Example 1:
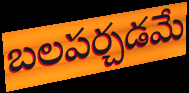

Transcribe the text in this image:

బలపర్చడమే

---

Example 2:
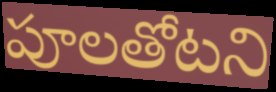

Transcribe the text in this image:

పూలతోటని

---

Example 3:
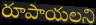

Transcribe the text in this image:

రూపాయలని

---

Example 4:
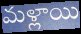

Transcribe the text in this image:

మళ్లాయి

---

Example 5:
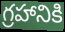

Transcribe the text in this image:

గ్రహానికి